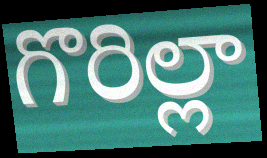
గొరిల్లా